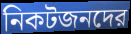
নিকটজনদের